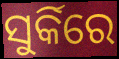
ସୁର୍କିରେ